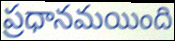
ప్రధానమయింది